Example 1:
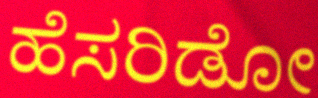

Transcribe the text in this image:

ಹೆಸರಿಡೋ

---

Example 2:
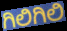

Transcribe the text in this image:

ಗಿಲಿಗಿಲಿ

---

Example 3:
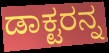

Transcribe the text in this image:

ಡಾಕ್ಟರನ್ನ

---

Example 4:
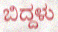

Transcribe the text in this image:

ಬಿದ್ದಳು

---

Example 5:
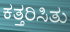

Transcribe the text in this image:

ಕತ್ತರಿಸಿತು